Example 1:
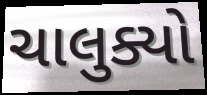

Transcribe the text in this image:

ચાલુક્યો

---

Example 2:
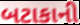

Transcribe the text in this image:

બટાકાની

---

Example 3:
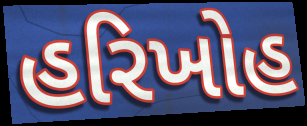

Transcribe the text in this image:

હરિખોહ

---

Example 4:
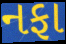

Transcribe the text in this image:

નફા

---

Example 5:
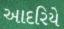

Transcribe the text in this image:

આદરિયે